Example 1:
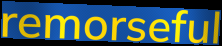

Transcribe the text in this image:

remorseful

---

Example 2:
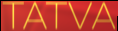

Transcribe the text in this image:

TATVA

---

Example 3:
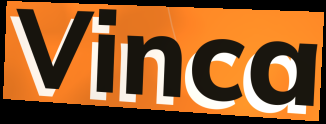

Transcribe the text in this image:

Vinca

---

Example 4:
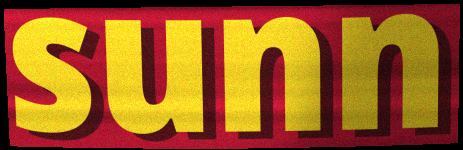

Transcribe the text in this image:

sunn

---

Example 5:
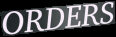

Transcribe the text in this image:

ORDERS